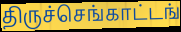
திருச்செங்காட்டங்